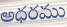
అధరము